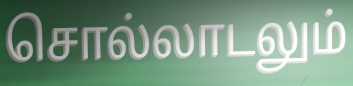
சொல்லாடலும்